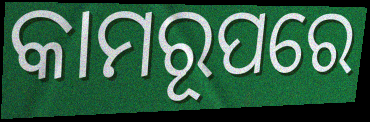
କାମରୂପରେ